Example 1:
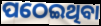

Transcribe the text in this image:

ପଠେଇଥିବା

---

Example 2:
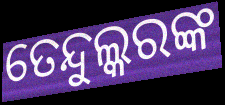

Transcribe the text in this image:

ତେନ୍ଦୁଲ୍କରଙ୍କ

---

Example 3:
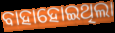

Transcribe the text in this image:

ବାହାହୋଇଥିଲା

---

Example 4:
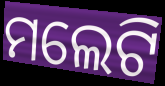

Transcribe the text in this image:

ମଲେଟି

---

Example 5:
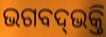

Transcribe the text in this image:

ଭଗବଦ୍‌ଭକ୍ତି